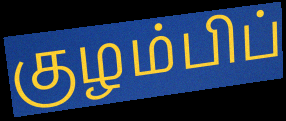
குழம்பிப்